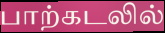
பாற்கடலில்